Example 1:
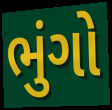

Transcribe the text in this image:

ભુંગો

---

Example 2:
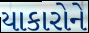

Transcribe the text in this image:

યાકારોને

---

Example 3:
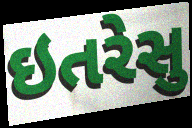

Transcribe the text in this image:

ઇતરેસુ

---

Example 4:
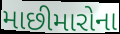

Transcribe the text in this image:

માછીમારોના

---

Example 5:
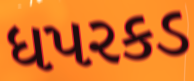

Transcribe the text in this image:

ધપરકડ